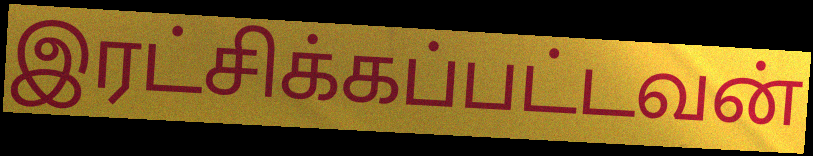
இரட்சிக்கப்பட்டவன்